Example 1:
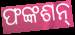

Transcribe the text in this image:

ଫଙ୍କଶନ୍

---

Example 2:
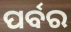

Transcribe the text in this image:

ପର୍ବର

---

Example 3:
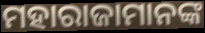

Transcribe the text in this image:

ମହାରାଜାମାନଙ୍କ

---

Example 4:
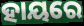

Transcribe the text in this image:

ହାୟରେ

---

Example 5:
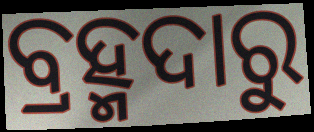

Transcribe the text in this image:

ବ୍ରହ୍ମଦାରୁ